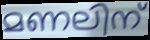
മണലിന്